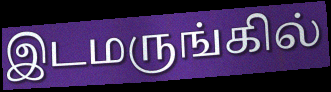
இடமருங்கில்